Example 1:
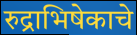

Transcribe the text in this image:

रुद्राभिषेकाचे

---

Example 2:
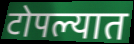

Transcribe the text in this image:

टोपल्यात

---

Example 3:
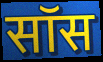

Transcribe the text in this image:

सॉस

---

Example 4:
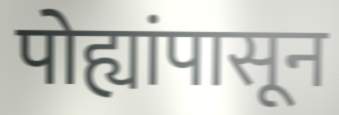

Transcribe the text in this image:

पोह्यांपासून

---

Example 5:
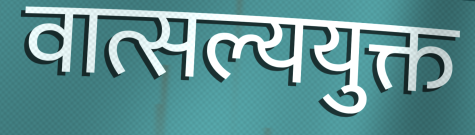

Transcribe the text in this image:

वात्सल्ययुक्त